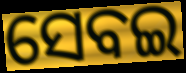
ସେବଇ